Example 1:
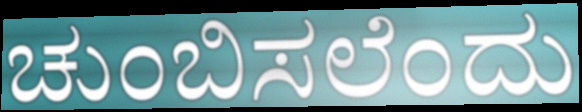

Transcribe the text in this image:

ಚುಂಬಿಸಲೆಂದು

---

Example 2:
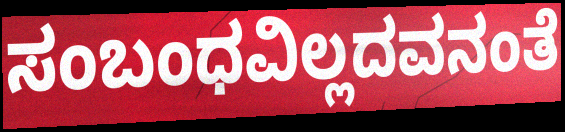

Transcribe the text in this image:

ಸಂಬಂಧವಿಲ್ಲದವನಂತೆ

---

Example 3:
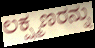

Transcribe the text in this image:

ಲಕ್ಷ್ಮಣರನ್ನು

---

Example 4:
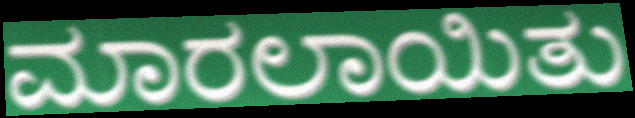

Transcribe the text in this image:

ಮಾರಲಾಯಿತು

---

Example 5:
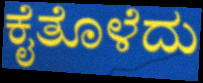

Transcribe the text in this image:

ಕೈತೊಳೆದು